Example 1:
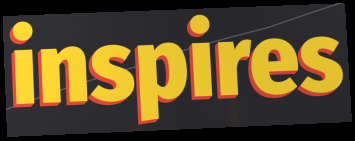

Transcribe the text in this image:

inspires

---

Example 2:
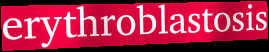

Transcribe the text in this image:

erythroblastosis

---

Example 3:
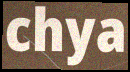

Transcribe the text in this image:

chya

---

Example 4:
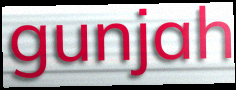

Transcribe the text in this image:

gunjah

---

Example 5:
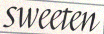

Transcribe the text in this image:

sweeten